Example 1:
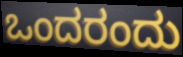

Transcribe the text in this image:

ಒಂದರಂದು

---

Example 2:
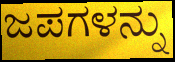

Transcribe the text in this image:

ಜಪಗಳನ್ನು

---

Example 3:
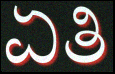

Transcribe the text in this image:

ಏತಿ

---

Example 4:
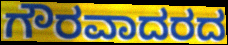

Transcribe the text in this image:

ಗೌರವಾದರದ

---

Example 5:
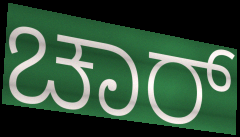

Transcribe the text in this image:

ಚಾರ್